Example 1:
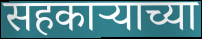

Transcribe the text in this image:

सहकार्‍याच्या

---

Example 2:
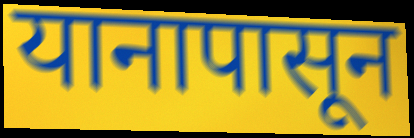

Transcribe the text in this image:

यानापासून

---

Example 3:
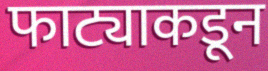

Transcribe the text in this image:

फाट्याकडून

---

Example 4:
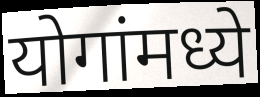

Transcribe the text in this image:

योगांमध्ये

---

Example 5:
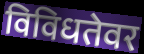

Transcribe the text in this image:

विविधतेवर